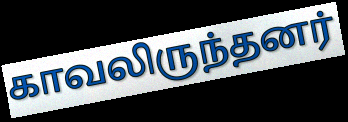
காவலிருந்தனர்